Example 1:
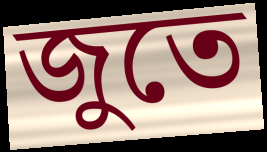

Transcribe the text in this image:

জুতে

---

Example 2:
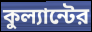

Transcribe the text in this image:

কুল্যান্টের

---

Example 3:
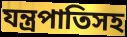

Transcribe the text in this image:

যন্ত্রপাতিসহ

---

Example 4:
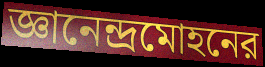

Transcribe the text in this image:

জ্ঞানেন্দ্রমোহনের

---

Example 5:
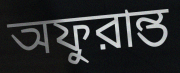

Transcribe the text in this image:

অফুরান্ত